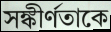
সঙ্কীর্ণতাকে